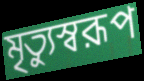
মৃত্যুস্বরূপ